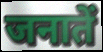
जनातें